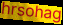
hrsohag